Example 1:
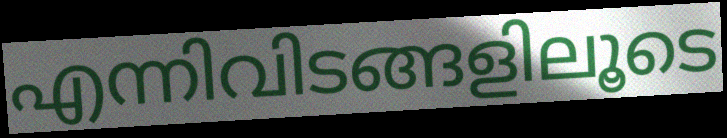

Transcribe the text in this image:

എന്നിവിടങ്ങളിലൂടെ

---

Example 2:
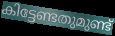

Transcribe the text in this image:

കിട്ടേണ്ടതുമുണ്ട്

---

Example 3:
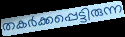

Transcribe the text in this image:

തകർക്കപ്പെട്ടിരുന്ന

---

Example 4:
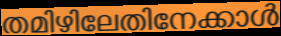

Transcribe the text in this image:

തമിഴിലേതിനേക്കാൾ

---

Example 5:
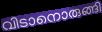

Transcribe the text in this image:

വിടാനൊരുങ്ങി